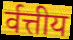
र्वत्तीय